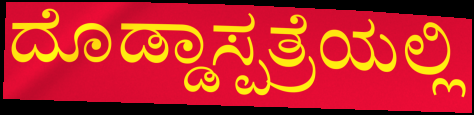
ದೊಡ್ಡಾಸ್ಪತ್ರೆಯಲ್ಲಿ